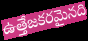
ఉత్తేజకరమైనది